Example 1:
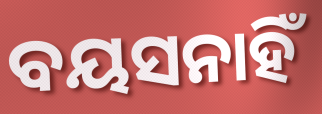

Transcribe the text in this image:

ବୟସନାହିଁ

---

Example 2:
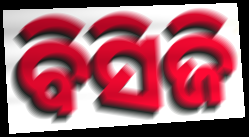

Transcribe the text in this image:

ବିସିଜି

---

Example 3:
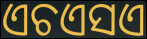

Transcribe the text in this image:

ଏଚଏସଏ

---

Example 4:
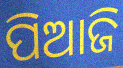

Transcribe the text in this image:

ପିଆଜି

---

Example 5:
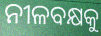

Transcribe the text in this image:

ନୀଳବକ୍ଷକୁ